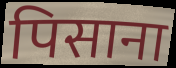
पिसाना